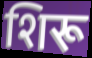
शिरू